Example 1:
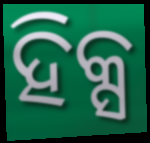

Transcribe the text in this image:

ହିକ୍ସ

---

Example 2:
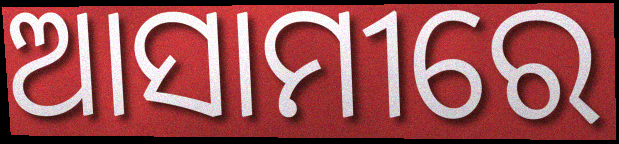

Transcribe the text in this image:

ଆସାମୀରେ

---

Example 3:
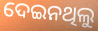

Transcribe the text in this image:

ଦେଇନଥିଲୁ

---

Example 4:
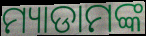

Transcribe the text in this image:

ମ୍ୟାଡାମଙ୍କ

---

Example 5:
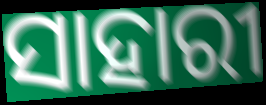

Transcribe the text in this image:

ସାହାରୀ